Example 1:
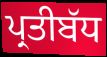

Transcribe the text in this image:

ਪ੍ਰਤੀਬੱਧ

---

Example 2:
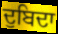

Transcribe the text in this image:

ਦੁਬਿਦਾ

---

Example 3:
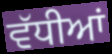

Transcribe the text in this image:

ਵੱਧੀਆਂ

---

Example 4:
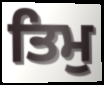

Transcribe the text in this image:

ਤਿਮੁ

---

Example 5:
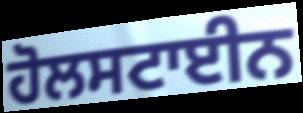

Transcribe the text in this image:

ਹੋਲਸਟਾਈਨ